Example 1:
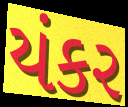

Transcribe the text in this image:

યંકર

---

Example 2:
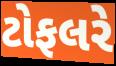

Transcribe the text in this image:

ટોફલરે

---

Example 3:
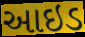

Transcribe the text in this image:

આઇડ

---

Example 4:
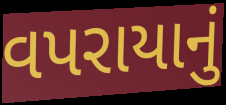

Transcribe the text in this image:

વપરાયાનું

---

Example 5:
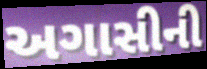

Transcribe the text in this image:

અગાસીની